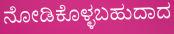
ನೋಡಿಕೊಳ್ಳಬಹುದಾದ